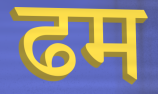
ढम